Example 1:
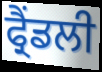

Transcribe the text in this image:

ਫ੍ਰੈਂਡਲੀ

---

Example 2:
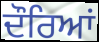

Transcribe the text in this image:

ਦੌਰਿਆਂ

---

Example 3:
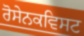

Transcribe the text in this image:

ਰੋਸੇਨਕਵਿਸਟ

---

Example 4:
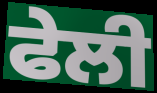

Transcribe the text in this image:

ਫੇਲੀ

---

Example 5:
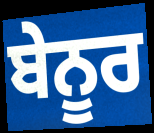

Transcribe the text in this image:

ਬੇਨੂਰ